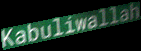
Kabuliwallah